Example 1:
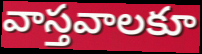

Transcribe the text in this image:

వాస్తవాలకూ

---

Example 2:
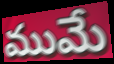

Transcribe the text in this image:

ముమే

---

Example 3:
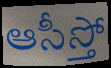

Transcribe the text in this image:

ఆసీస్తో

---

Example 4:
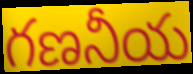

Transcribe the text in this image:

గణనీయ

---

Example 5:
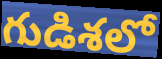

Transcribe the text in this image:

గుడిశలో